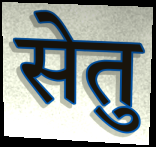
सेतु